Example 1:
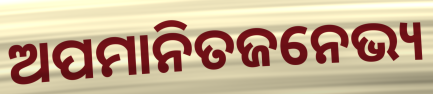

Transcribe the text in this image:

ଅପମାନିତଜନେଭ୍ୟ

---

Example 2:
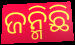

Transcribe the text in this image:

ଜନ୍ମିଛି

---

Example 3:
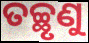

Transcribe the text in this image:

ତଚ୍ଛୃଣୁ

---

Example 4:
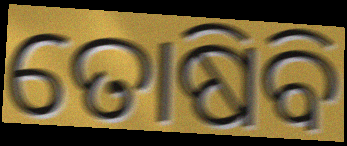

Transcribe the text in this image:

ତୋଷିବି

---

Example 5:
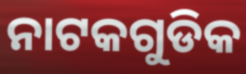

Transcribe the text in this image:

ନାଟକଗୁଡିକ